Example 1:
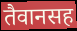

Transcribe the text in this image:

तैवानसह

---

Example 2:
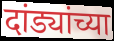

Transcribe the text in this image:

दांड्यांच्या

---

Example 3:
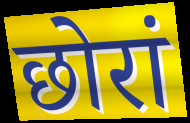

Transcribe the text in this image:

छोरां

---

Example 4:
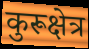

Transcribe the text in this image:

कुरूक्षेत्र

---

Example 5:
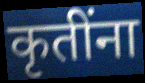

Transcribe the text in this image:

कृतींना